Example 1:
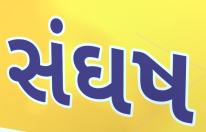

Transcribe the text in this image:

સંઘષ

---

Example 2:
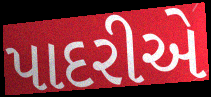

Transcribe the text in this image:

પાદરીએ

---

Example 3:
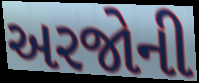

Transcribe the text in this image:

અરજોની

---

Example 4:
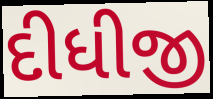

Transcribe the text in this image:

દીધીજી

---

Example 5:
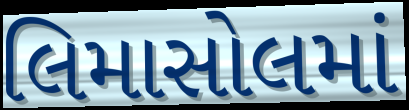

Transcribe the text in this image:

લિમાસોલમાં